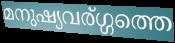
മനുഷ്യവര്ഗ്ഗത്തെ